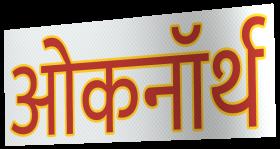
ओकनॉर्थ